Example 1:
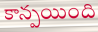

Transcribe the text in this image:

కాన్పయింది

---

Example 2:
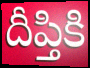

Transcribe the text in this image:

దీప్తికి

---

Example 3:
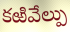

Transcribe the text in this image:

కఱివేల్పు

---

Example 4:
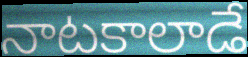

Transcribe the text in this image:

నాటకాలాడే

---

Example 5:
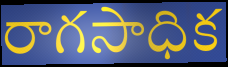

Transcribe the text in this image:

రాగసాధిక